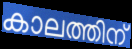
കാലത്തിന്